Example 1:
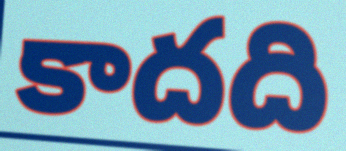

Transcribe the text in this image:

కాదది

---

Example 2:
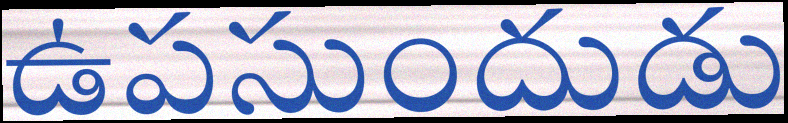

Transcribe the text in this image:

ఉపసుందుడు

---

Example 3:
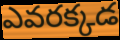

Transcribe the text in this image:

ఎవరక్కడ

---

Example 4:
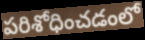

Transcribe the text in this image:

పరిశోధించడంలో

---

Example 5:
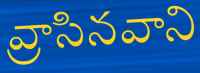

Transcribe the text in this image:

వ్రాసినవాని